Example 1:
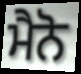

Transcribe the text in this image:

ਮੈਨੋ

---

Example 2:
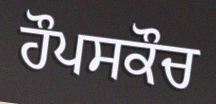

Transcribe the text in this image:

ਹੌਪਸਕੌਚ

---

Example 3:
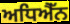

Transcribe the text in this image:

ਅਧਿਐੱਨ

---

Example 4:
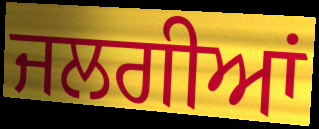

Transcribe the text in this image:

ਜਲਗੀਆਂ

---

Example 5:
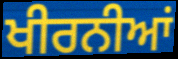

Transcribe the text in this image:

ਖੀਰਨੀਆਂ